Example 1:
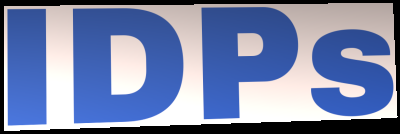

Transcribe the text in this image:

IDPs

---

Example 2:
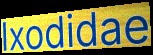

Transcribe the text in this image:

Ixodidae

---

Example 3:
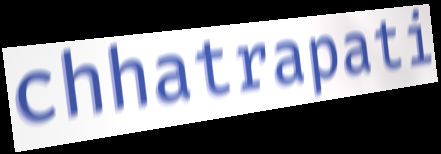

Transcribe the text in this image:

chhatrapati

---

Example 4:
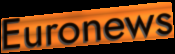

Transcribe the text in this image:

Euronews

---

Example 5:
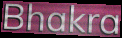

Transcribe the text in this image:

Bhakra